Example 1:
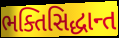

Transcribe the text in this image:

ભક્તિસિદ્ધાન્ત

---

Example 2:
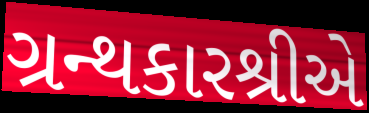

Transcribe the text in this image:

ગ્રન્થકારશ્રીએ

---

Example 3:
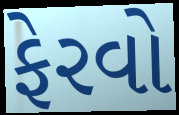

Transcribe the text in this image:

ફેરવો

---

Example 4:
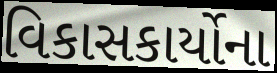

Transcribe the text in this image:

વિકાસકાર્યોના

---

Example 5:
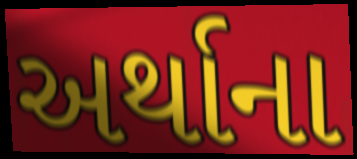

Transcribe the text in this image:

અર્થાના